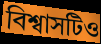
বিশ্বাসটিও